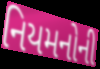
નિયમનોની